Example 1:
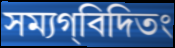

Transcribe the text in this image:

সম্যগ্‌বিদিতং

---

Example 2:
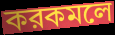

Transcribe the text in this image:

করকমলে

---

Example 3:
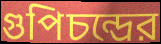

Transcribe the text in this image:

গুপিচন্দ্রের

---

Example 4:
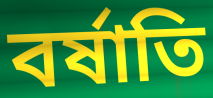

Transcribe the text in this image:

বর্ষাতি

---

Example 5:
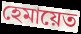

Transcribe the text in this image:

হেমায়েত